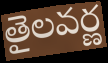
తైలవర్ణ